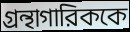
গ্রন্থাগারিককে